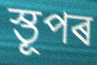
স্তূপৰ